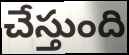
చేస్తుంది